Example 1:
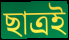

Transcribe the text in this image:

ছাত্রই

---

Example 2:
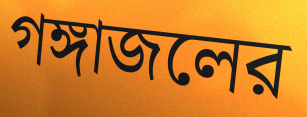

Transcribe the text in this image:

গঙ্গাজলের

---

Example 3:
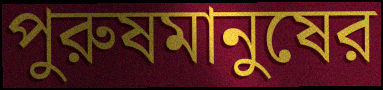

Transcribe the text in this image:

পুরুষমানুষের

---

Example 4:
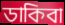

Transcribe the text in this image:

ডাকিবা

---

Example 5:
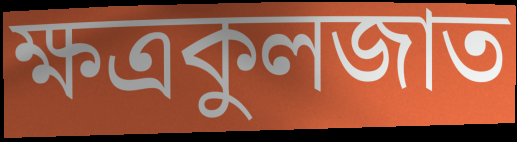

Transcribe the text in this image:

ক্ষত্রকুলজাত